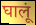
घालूं